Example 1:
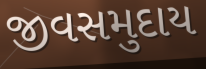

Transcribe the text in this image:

જીવસમુદાય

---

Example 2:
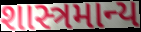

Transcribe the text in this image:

શાસ્ત્રમાન્ય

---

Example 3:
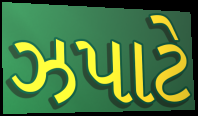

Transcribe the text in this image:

ઝપાટે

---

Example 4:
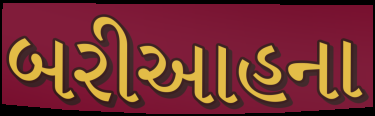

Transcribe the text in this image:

બરીઆહના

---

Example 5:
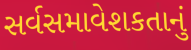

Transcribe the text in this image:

સર્વસમાવેશકતાનું